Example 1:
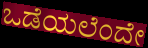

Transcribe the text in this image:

ಒಡೆಯಲೆಂದೇ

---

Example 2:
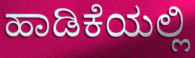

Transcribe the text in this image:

ಹಾಡಿಕೆಯಲ್ಲಿ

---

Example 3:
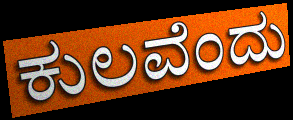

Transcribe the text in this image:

ಕುಲವೆಂದು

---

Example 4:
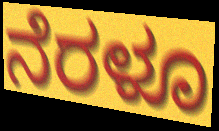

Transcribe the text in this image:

ನೆರಳೂ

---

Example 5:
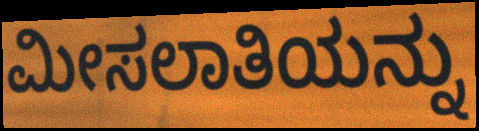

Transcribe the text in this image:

ಮೀಸಲಾತಿಯನ್ನು